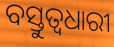
ବସ୍ତୁତ୍ୱଧାରୀ